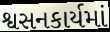
શ્વસનકાર્યમાં